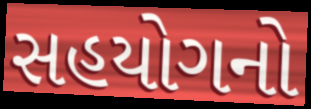
સહયોગનો